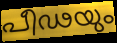
പീഢയും